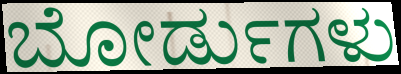
ಬೋರ್ಡುಗಳು